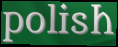
polish